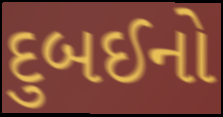
દુબઈનો